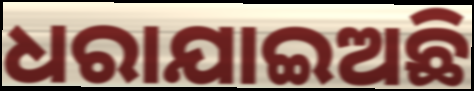
ଧରାଯାଇଅଛି